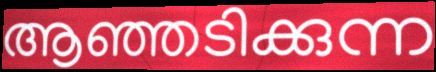
ആഞ്ഞടിക്കുന്ന